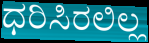
ಧರಿಸಿರಲಿಲ್ಲ